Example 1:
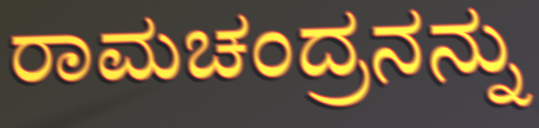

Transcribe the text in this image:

ರಾಮಚಂದ್ರನನ್ನು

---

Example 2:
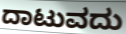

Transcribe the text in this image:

ದಾಟುವದು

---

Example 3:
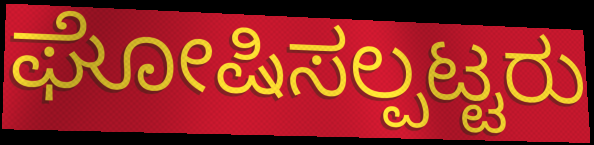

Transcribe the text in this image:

ಘೋಷಿಸಲ್ಪಟ್ಟರು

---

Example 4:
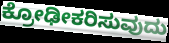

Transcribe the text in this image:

ಕ್ರೋಢೀಕರಿಸುವುದು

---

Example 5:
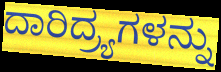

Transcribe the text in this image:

ದಾರಿದ್ರ್ಯಗಳನ್ನು